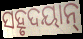
ସହୃଦୟାନ୍